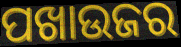
ପଖାଉଜର